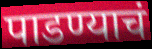
पाडण्याचं